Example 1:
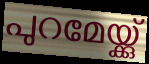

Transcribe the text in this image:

പുറമേയ്ക്കു്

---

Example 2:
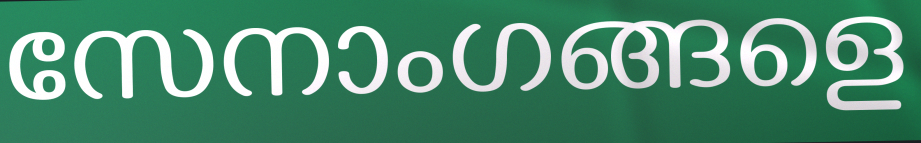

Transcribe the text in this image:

സേനാംഗങ്ങളെ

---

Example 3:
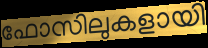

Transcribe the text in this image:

ഫോസിലുകളായി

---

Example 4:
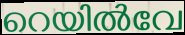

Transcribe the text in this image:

റെയിൽവേ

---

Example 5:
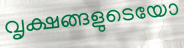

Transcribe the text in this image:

വൃക്ഷങ്ങളുടെയോ